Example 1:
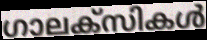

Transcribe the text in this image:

ഗാലക്സികൾ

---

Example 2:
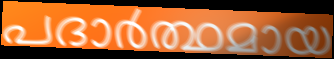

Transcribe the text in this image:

പദാർത്ഥമായ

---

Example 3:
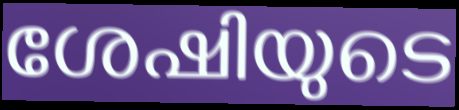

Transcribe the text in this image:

ശേഷിയുടെ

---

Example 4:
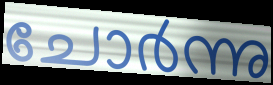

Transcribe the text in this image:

ചോർന്നു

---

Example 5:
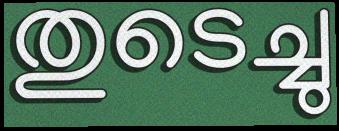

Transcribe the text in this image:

തുടെച്ചു